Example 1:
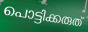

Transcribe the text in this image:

പൊട്ടിക്കരുത്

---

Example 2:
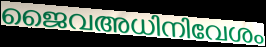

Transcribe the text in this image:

ജൈവഅധിനിവേശം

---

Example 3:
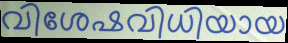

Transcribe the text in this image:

വിശേഷവിധിയായ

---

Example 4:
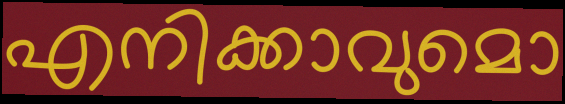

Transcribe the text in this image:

എനിക്കാവുമൊ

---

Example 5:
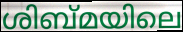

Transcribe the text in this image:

ശിബ്മയിലെ